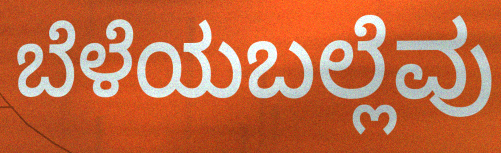
ಬೆಳೆಯಬಲ್ಲೆವು